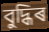
বুদ্ধিৰ